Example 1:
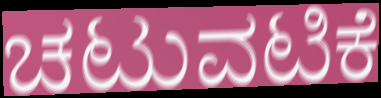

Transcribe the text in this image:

ಚಟುವಟಿಕೆ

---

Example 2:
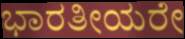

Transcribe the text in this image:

ಭಾರತೀಯರೇ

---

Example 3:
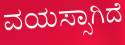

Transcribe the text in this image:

ವಯಸ್ಸಾಗಿದೆ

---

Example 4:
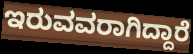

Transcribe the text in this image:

ಇರುವವರಾಗಿದ್ದಾರೆ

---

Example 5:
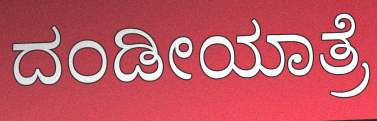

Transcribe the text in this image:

ದಂಡೀಯಾತ್ರೆ